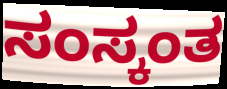
ಸಂಸ್ಕಂತ